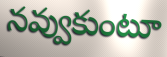
నవ్వుకుంటూ